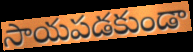
సాయపడకుండా